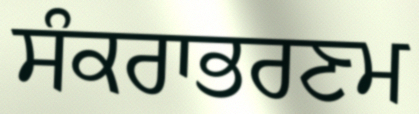
ਸੰਕਰਾਭਰਣਮ